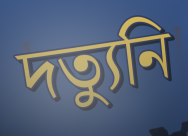
দত্যুনি